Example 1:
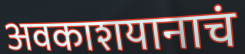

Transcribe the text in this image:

अवकाशयानाचं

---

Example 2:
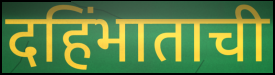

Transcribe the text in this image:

दहिंभाताची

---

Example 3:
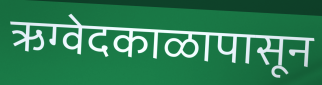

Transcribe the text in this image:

ऋग्वेदकाळापासून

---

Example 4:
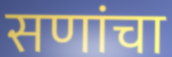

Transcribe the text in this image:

सणांचा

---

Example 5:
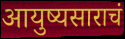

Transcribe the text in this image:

आयुष्यसाराचं